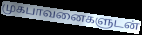
முகபாவனைகளுடன்